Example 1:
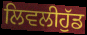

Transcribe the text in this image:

ਲਿਵਲੀਹੁੱਡ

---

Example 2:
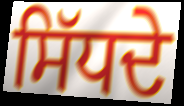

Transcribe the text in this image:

ਸਿੱਧਦੇ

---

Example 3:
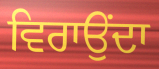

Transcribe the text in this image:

ਵਿਰਾਉਂਦਾ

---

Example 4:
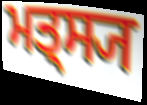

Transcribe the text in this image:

ਮਤ੍ਸ੍ਯ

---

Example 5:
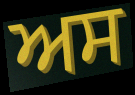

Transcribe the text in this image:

ਅਸ